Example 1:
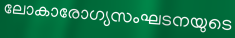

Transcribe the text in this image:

ലോകാരോഗ്യസംഘടനയുടെ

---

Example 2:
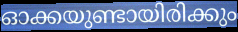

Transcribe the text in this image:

ഓക്കയുണ്ടായിരിക്കും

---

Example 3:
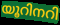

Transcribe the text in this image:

യൂറിനറി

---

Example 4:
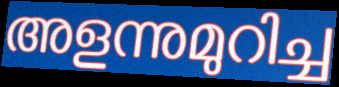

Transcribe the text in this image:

അളന്നുമുറിച്ച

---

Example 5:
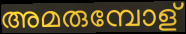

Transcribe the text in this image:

അമരുമ്പോള്